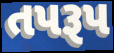
તપરૂપ